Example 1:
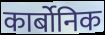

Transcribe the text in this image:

कार्बोनिक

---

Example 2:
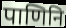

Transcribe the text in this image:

पाणिनि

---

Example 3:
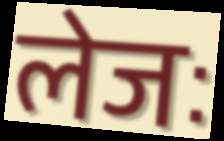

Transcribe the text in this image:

लेजः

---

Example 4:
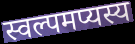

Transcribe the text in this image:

स्वल्पमप्यस्य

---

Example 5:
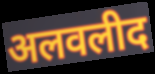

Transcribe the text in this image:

अलवलीद